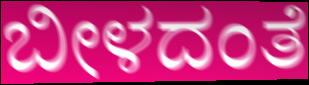
ಬೀಳದಂತೆ